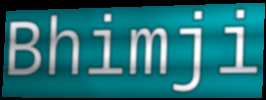
Bhimji